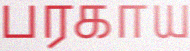
பரகாய